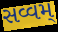
સવ્વમ્